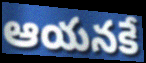
ఆయనకే